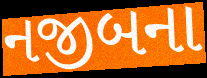
નજીબના